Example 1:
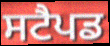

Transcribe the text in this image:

ਸਟੈਪਡ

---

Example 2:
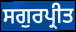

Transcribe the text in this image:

ਸਗੁਰਪ੍ਰੀਤ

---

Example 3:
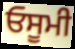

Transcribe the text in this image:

ਓਸੂਮੀ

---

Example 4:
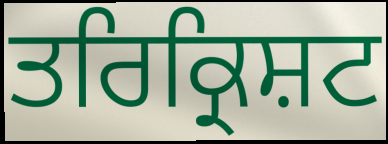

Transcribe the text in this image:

ਤਰਿਕ੍ਰਿਸ਼ਟ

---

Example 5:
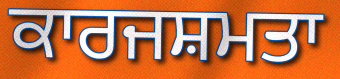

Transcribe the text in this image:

ਕਾਰਜਸ਼ਮਤਾ